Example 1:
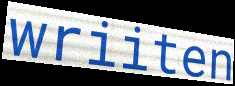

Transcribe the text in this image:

wriiten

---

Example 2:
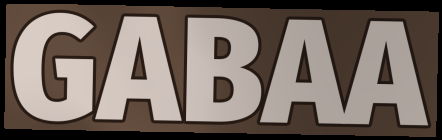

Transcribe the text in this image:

GABAA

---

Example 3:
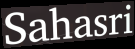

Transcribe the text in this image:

Sahasri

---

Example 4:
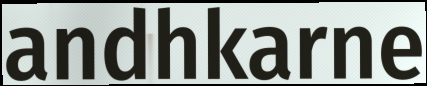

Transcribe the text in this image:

andhkarne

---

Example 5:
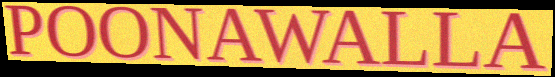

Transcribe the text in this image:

POONAWALLA